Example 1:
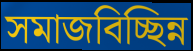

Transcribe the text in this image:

সমাজবিচ্ছিন্ন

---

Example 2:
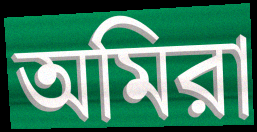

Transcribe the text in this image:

অমিরা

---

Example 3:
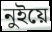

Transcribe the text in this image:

নুইয়ে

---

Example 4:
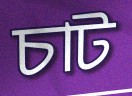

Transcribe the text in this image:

চাট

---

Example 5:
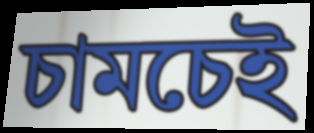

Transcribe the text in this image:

চামচেই